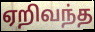
ஏறிவந்த